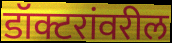
डॉक्टरांवरील